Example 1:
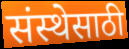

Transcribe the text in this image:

संस्थेसाठी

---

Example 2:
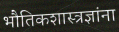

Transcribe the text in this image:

भौतिकशास्त्रज्ञांना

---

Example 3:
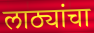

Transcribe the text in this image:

लाठ्यांचा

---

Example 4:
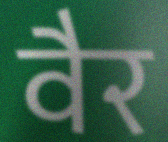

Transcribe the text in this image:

वैर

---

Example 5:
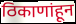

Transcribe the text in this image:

ठिकाणांहून